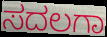
ಸದಲಗಾ